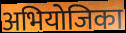
अभियोजिका